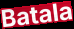
Batala